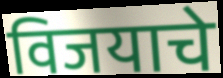
विजयाचे